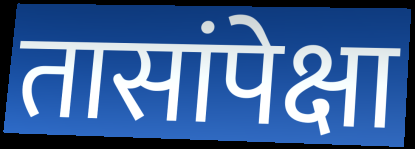
तासांपेक्षा